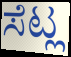
ಸೆಟ್ಲ